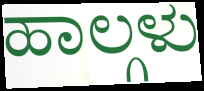
ಹಾಲ್ಗಳು